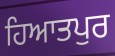
ਹਿਆਤਪੁਰ